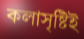
কলাসৃষ্টিই